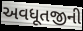
અવધૂતજીની